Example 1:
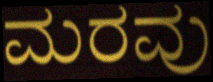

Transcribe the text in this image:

ಮರವು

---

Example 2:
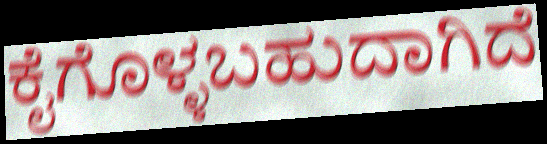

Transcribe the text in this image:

ಕೈಗೊಳ್ಳಬಹುದಾಗಿದೆ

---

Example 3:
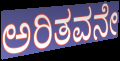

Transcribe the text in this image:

ಅರಿತವನೇ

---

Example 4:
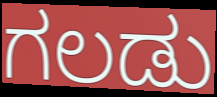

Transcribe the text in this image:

ಗಲಡು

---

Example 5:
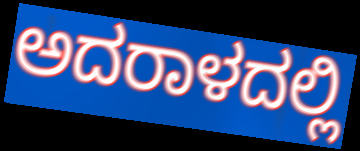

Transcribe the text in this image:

ಅದರಾಳದಲ್ಲಿ